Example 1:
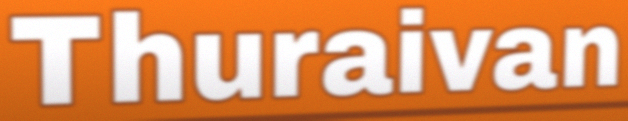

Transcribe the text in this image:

Thuraivan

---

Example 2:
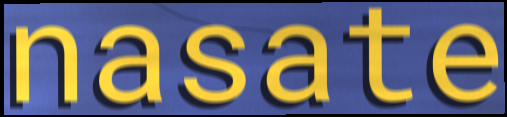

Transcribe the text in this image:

nasate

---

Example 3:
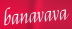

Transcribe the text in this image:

banavava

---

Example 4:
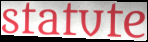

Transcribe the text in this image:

statute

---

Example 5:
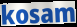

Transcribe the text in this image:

kosam